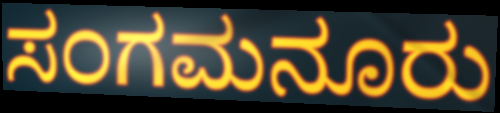
ಸಂಗಮನೂರು